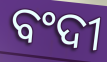
ବଂଦୀ